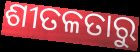
ଶୀତଳତାରୁ